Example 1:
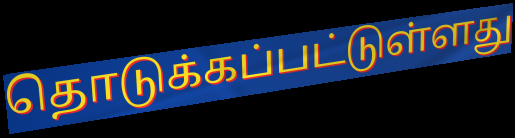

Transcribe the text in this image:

தொடுக்கப்பட்டுள்ளது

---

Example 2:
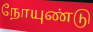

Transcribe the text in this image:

நோயுண்டு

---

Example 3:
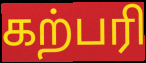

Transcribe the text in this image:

கற்பரி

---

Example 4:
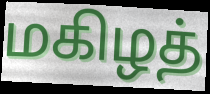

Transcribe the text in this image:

மகிழத்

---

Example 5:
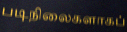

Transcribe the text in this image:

படிநிலைகளாகப்